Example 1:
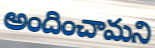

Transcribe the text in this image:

అందించామని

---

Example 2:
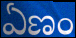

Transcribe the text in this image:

ఏణం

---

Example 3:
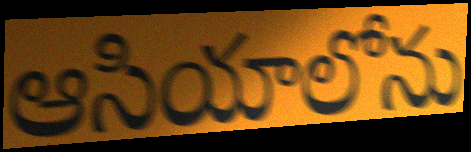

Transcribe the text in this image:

ఆసియాలోను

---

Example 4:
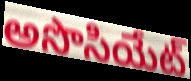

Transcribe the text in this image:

అసొసియేట్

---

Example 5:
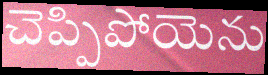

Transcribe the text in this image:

చెప్పిపోయెను